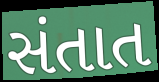
સંતાત